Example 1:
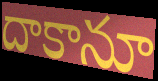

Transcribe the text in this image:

దాకానూ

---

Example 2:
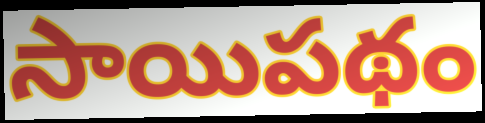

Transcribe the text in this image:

సాయిపథం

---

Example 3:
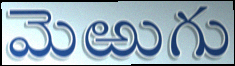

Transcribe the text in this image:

మెఱుగు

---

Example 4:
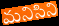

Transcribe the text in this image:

మనిసిని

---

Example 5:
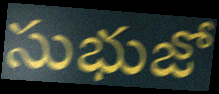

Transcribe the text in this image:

సుభుజో